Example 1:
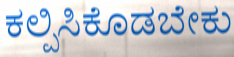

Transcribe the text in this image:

ಕಲ್ಪಿಸಿಕೊಡಬೇಕು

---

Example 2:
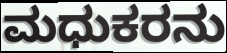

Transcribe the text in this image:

ಮಧುಕರನು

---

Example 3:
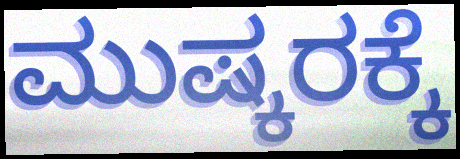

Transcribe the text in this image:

ಮುಷ್ಕರಕ್ಕೆ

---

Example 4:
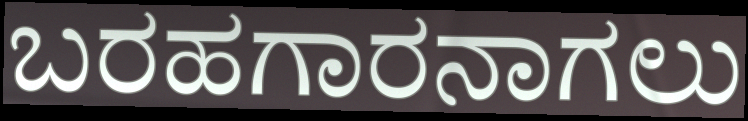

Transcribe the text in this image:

ಬರಹಗಾರನಾಗಲು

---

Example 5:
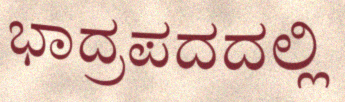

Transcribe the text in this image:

ಭಾದ್ರಪದದಲ್ಲಿ